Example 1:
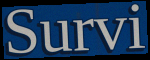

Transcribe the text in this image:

Survi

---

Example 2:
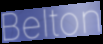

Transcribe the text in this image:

Belton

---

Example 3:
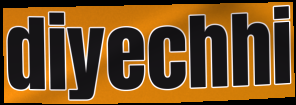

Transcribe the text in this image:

diyechhi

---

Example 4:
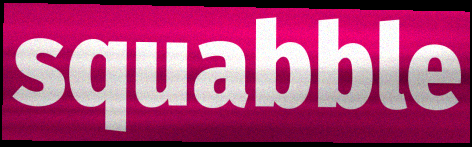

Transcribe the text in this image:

squabble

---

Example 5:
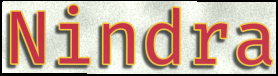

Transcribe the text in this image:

Nindra